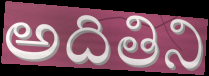
అదితిని